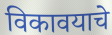
विकावयाचे